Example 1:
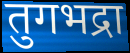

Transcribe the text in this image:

तुगभद्रा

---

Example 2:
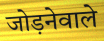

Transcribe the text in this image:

जोड़नेवाले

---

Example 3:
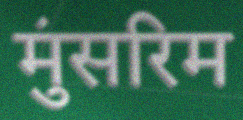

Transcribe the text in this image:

मुंसरिम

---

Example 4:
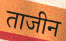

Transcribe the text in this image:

ताजीन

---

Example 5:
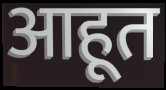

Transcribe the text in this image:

आहूत